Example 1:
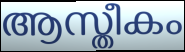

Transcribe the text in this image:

ആസ്തീകം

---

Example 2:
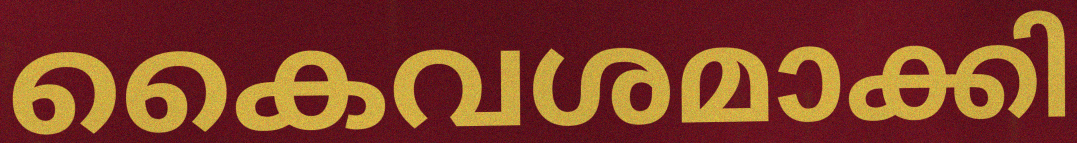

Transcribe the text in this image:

കൈവശമാക്കി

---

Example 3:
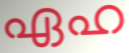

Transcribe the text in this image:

ഏഹ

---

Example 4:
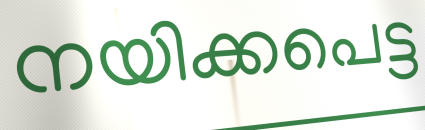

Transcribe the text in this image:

നയിക്കപെട്ട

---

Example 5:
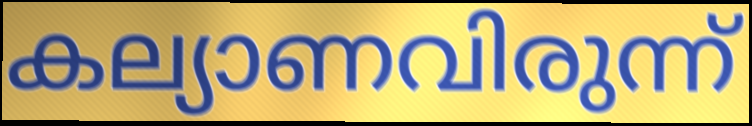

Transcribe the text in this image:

കല്യാണവിരുന്ന്